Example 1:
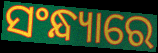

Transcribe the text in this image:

ସଂନ୍ଧ୍ୟାରେ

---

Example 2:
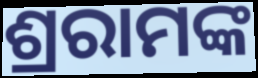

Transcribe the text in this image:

ଶ୍ରରାମଙ୍କ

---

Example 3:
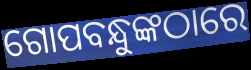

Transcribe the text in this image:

ଗୋପବନ୍ଧୁଙ୍କଠାରେ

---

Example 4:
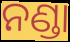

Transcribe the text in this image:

ନଣ୍ଡା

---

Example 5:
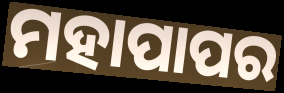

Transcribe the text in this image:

ମହାପାପର